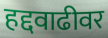
हद्दवाढीवर